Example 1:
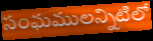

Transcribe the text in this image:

సంఘములన్నిటిలో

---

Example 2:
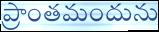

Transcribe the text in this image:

ప్రాంతమందును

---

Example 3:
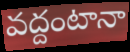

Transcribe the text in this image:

వద్దంటానా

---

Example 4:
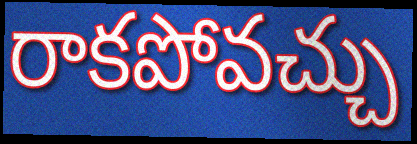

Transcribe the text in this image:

రాకపోవచ్చు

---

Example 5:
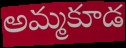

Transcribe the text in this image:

అమ్మకూడ